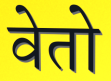
वेतो